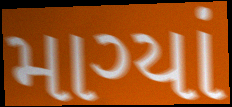
માગ્યાં